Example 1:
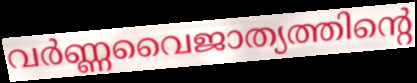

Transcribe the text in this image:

വർണ്ണവൈജാത്യത്തിന്റെ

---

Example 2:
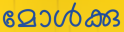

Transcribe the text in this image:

മോൾക്കു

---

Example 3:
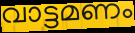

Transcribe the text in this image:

വാട്ടമണം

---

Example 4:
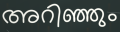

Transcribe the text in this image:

അറിഞ്ഞും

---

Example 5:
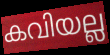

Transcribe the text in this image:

കവിയല്ല